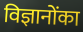
विज्ञानोंका